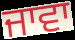
ਜਾਵਾ